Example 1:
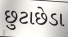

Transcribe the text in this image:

છુટાછેડા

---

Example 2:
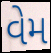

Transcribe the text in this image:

વેમ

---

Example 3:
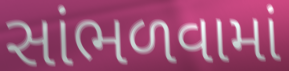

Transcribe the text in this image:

સાંભળવામાં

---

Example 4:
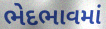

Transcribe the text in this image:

ભેદભાવમાં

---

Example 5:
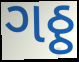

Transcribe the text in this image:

ગઠ્ઠ